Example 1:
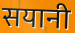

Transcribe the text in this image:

सयानी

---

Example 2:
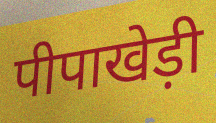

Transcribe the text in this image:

पीपाखेड़ी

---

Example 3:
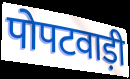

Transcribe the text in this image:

पोपटवाड़ी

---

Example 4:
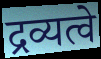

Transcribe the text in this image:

द्रव्यत्वे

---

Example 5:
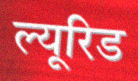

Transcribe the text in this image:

ल्यूरिड